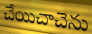
చేయిచాచెను